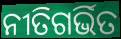
ନୀତିଗର୍ଭିତ